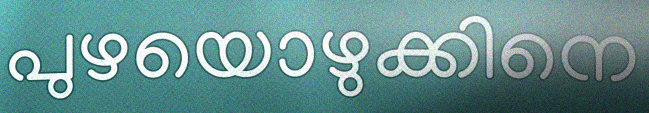
പുഴയൊഴുക്കിനെ